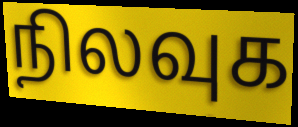
நிலவுக